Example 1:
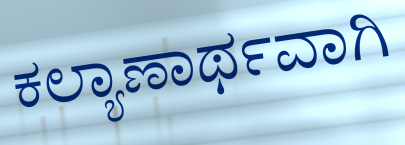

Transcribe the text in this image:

ಕಲ್ಯಾಣಾರ್ಥವಾಗಿ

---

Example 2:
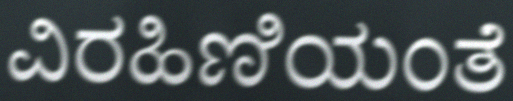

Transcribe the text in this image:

ವಿರಹಿಣಿಯಂತೆ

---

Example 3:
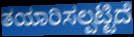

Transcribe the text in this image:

ತಯಾರಿಸಲ್ಪಟ್ಟಿದೆ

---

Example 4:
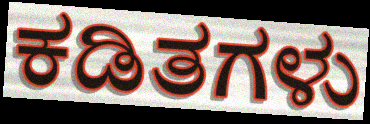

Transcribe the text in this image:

ಕಡಿತಗಳು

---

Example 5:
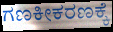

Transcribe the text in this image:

ಗಣಕೀಕರಣಕ್ಕೆ